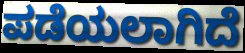
ಪಡೆಯಲಾಗಿದೆ